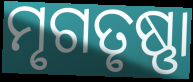
ମୃଗତୃଷ୍ଣା